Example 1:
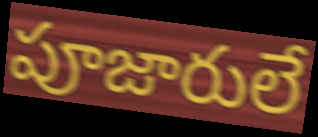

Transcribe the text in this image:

పూజారులే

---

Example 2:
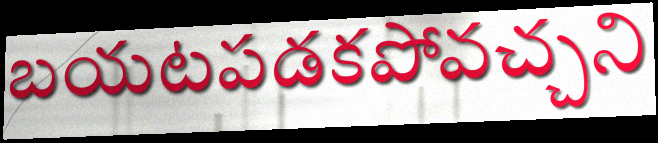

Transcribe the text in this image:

బయటపడకపోవచ్చని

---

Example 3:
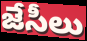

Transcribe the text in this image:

జేసీలు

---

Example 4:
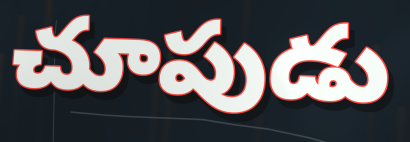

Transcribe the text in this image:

చూపుడు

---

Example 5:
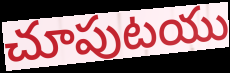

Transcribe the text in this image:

చూపుటయు